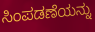
ಸಿಂಪಡಣೆಯನ್ನು